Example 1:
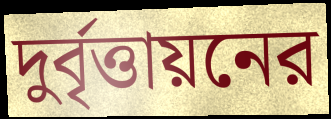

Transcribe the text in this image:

দুর্বৃত্তায়নের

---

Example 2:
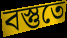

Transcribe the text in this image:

বস্তুতে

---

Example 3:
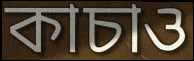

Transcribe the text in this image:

কাচাও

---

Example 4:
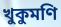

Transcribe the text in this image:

খুকুমণি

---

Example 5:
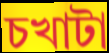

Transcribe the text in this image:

চখাটা